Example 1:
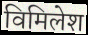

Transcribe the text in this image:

विमिलेश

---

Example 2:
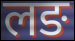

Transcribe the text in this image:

लङ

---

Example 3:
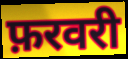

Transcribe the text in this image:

फ़रवरी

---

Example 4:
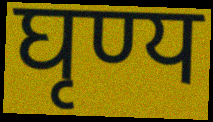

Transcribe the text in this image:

घृण्य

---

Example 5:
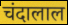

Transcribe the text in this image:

चंदालाल